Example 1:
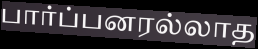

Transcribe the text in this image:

பார்ப்பனரல்லாத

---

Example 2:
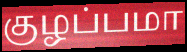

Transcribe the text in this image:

குழப்பமா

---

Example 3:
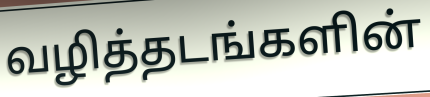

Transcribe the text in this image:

வழித்தடங்களின்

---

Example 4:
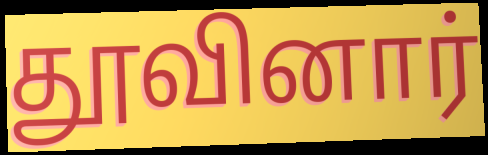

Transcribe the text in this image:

தூவினார்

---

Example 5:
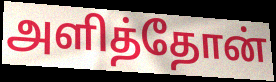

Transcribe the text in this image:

அளித்தோன்